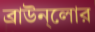
ব্রাউন্লোর